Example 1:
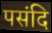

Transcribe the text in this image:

पसंदि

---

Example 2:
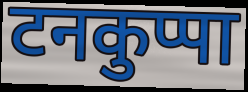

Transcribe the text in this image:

टनकुप्पा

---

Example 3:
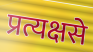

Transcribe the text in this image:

प्रत्यक्षसे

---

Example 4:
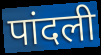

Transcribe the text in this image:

पांदली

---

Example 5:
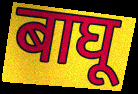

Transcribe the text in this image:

बाघू